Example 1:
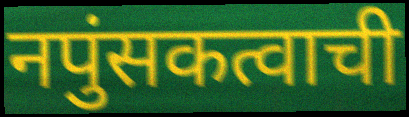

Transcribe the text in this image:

नपुंसकत्वाची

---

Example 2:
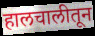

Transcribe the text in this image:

हालचालीतून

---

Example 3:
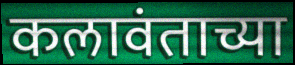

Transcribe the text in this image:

कलावंताच्या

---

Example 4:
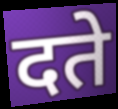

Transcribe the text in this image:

दते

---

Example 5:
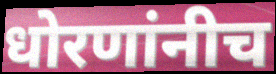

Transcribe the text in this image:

धोरणांनीच